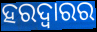
ହରଦ୍ୱାରର